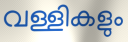
വള്ളികളും